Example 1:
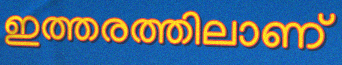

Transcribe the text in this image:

ഇത്തരത്തിലാണ്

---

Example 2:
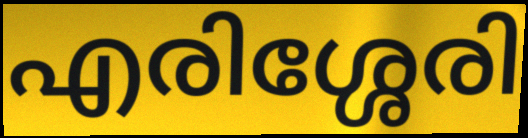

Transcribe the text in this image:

എരിശ്ശേരി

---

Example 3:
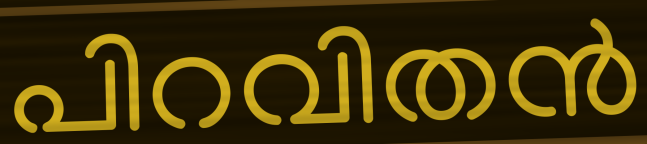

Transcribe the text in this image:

പിറവിതൻ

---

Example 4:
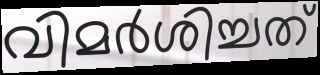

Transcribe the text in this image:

വിമർശിച്ചത്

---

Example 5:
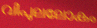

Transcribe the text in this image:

വിപുലലോകം